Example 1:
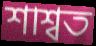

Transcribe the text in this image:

শাশ্বত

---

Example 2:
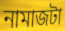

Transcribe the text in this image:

নামাজটা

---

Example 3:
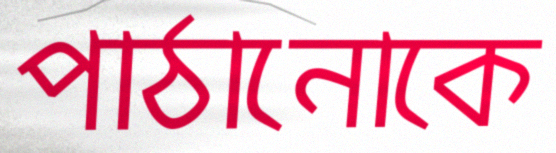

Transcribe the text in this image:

পাঠানোকে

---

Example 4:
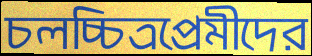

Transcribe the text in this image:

চলচ্চিত্রপ্রেমীদের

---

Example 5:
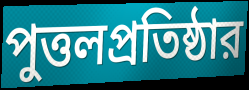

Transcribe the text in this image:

পুত্তলপ্রতিষ্ঠার